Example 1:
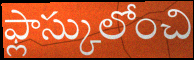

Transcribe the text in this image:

ఫ్లాస్కులోంచి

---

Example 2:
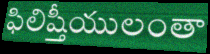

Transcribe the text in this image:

ఫిలిష్తీయులంతా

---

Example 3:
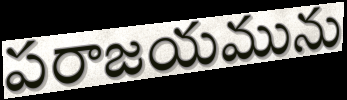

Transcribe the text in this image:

పరాజయమును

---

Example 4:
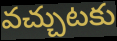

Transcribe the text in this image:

వచ్చుటకు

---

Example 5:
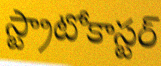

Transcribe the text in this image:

స్ట్రాటోకాస్టర్